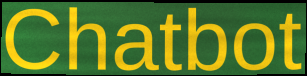
Chatbot